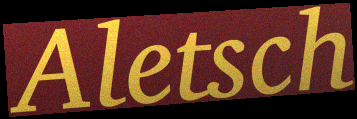
Aletsch